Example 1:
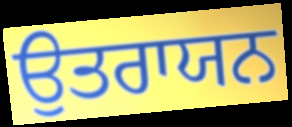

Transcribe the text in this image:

ਉਤਰਾਯਨ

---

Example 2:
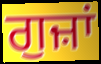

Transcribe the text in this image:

ਗੁਜ਼ਾਂ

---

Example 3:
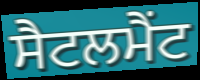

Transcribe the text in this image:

ਸੈਟਲਮੈਂਟ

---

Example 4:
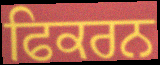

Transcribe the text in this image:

ਫਿਕਰਨ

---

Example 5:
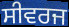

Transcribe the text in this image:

ਸੀਵਰਜ